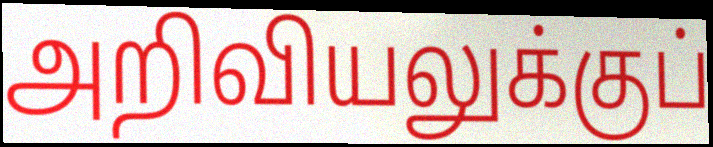
அறிவியலுக்குப்